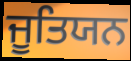
ਜੂਤਿਯਨ